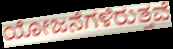
ಯೋಜನೆಗಳಿರುತ್ತವೆ